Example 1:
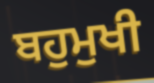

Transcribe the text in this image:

ਬਹੁਮੁਖੀ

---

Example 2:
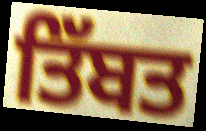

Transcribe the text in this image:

ਤਿੱਬਤ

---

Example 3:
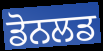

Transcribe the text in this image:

ਡੋਨਲਡ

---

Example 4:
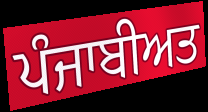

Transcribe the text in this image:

ਪੰਜਾਬੀਅਤ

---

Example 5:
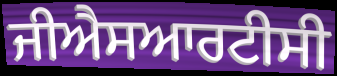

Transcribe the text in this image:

ਜੀਐਸਆਰਟੀਸੀ